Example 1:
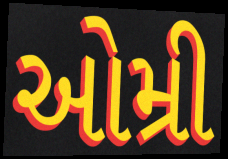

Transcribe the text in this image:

ઓમ્રી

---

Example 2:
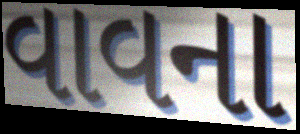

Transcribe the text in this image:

વાવના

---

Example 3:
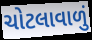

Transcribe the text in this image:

ચોટલાવાળું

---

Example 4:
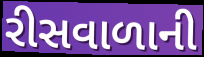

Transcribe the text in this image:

રીસવાળાની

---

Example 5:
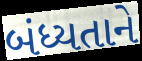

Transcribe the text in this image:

બંધ્યતાને